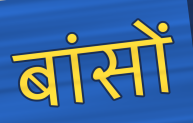
बांसों